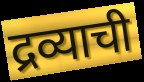
द्रव्याची